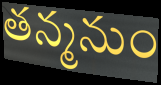
తన్మనుం